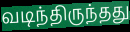
வடிந்திருந்தது